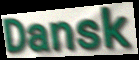
Dansk